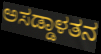
ಅಸಡ್ಡಾಳತನ